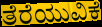
ತೆರೆಯುವಿಕೆ